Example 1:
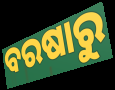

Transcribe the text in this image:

ବରଷାରୁ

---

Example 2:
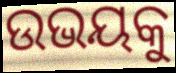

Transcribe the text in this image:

ଉଭୟକୁ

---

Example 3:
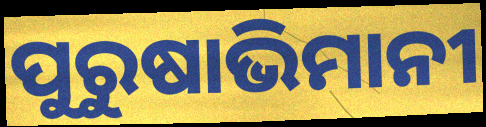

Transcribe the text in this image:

ପୁରୁଷାଭିମାନୀ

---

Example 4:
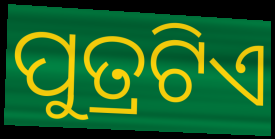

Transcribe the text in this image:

ପୁତ୍ରଟିଏ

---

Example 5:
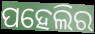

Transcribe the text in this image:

ପହେଲିର